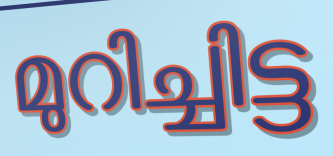
മുറിച്ചിട്ട